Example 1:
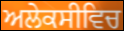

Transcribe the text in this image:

ਅਲੇਕਸੀਵਿਚ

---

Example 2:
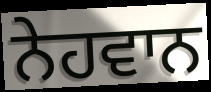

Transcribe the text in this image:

ਨੇਹਵਾਨ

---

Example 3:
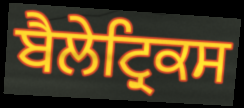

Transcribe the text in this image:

ਬੈਲੇਟ੍ਰਿਕਸ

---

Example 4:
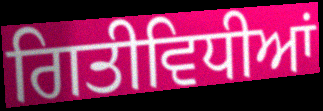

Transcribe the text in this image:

ਗਿਤੀਵਿਧੀਆਂ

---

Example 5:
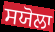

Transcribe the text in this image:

ਸਯੋਲਾ